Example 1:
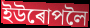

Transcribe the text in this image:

ইউৰোপলৈ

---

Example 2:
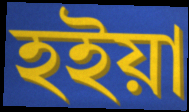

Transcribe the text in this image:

হইয়া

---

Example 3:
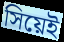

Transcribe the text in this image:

সিয়েই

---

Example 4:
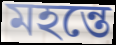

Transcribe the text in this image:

মহন্তে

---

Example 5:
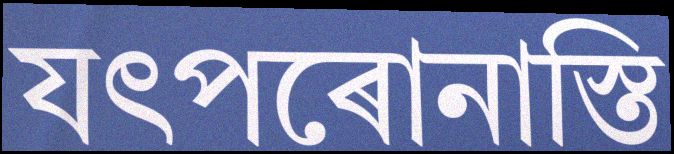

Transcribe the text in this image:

যৎপৰোনাস্তি